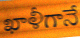
ఖాళీగానే